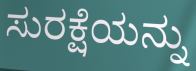
ಸುರಕ್ಷೆಯನ್ನು